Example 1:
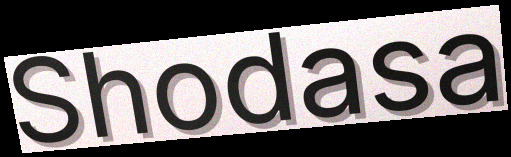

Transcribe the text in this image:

Shodasa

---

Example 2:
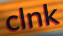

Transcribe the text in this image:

clnk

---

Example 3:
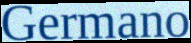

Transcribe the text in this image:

Germano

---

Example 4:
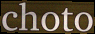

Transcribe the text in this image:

choto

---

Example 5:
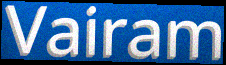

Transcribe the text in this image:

Vairam